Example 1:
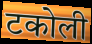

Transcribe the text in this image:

टकोली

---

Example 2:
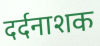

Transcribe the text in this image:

दर्दनाशक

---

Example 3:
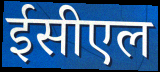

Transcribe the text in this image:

ईसीएल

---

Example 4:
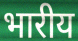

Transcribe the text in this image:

भारीय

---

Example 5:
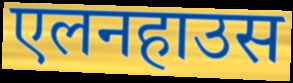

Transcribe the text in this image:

एलनहाउस